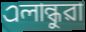
এলান্ধুৱা